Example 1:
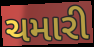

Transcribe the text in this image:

ચમારી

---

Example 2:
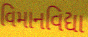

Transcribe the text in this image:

વિમાનવિદ્યા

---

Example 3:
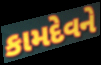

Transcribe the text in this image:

કામદેવને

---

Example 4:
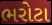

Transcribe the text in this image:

ભરોટા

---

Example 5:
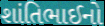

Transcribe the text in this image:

શાંતિભાઈનો